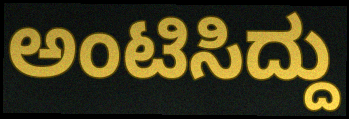
ಅಂಟಿಸಿದ್ದು